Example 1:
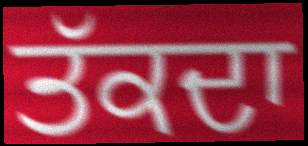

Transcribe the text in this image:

ਤੱਕਦਾ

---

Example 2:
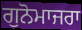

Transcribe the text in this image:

ਗੁਨੋਮਾਜਰਾ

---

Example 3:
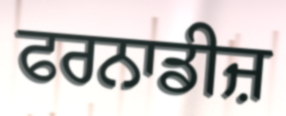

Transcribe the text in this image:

ਫਰਨਾਡੀਜ਼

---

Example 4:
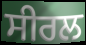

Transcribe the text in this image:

ਸੀਰਲ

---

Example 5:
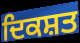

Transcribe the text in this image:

ਦਿਕਸ਼ਤ